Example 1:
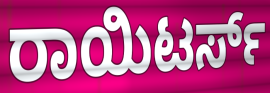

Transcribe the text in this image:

ರಾಯಿಟರ್ಸ್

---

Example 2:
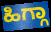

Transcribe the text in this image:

ಹಿಗ್ಗಾ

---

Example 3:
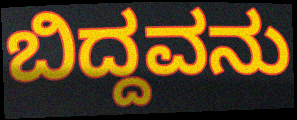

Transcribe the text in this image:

ಬಿದ್ದವನು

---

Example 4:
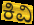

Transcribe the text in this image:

ಕಿವಿ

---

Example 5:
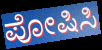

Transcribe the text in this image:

ಪೋಷಿಸಿ